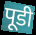
पूडी